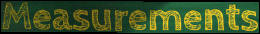
Measurements